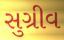
સુગ્રીવ